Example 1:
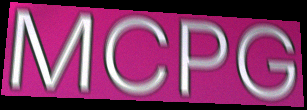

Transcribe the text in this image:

MCPG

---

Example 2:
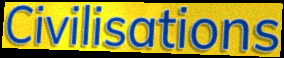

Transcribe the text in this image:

Civilisations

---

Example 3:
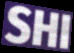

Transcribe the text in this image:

SHI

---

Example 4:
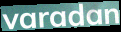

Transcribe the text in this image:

varadan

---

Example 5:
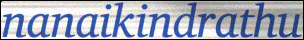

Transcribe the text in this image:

nanaikindrathu